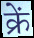
क्रें